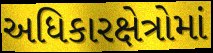
અધિકારક્ષેત્રોમાં